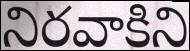
నిరవాకిని